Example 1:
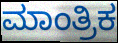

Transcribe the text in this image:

ಮಾಂತ್ರಿಕ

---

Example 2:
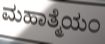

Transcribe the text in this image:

ಮಹಾತ್ಮೆಯಂ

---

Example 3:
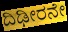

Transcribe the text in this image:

ದಿಢೀರನೇ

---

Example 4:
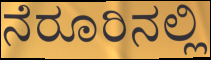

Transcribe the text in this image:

ನೆರೂರಿನಲ್ಲಿ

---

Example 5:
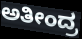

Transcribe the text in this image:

ಅತೀಂದ್ರ